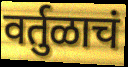
वर्तुळाचं